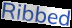
Ribbed